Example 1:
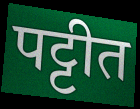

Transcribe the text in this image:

पट्टीत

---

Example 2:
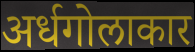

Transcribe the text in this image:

अर्धगोलाकार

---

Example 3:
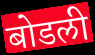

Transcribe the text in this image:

बोडली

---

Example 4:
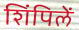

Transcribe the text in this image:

शिंपिलें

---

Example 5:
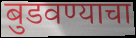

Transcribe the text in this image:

बुडवण्याचा